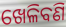
ଖେଳିବଣି